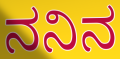
ನನಿನ